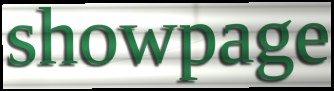
showpage